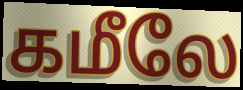
கமீலே